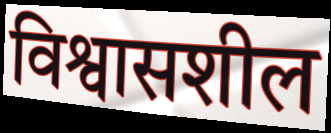
विश्वासशील